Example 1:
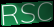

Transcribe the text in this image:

RSC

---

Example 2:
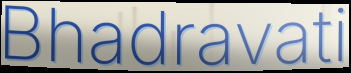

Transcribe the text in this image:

Bhadravati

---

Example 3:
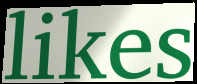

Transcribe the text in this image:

likes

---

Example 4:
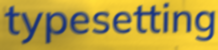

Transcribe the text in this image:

typesetting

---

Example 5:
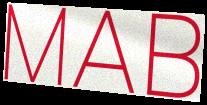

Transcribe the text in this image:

MAB